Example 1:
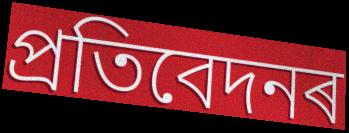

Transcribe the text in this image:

প্ৰতিবেদনৰ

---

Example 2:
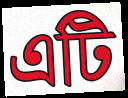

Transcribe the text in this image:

এটি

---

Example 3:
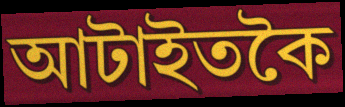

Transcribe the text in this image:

আটাইতকৈ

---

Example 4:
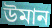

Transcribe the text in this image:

উমান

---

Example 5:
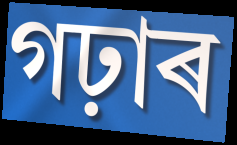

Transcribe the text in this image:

গঢ়াৰ